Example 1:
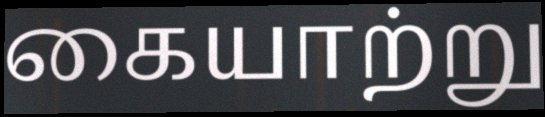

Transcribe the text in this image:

கையாற்று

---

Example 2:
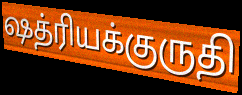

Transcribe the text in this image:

ஷத்ரியக்குருதி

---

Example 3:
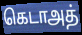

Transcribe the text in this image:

கெடாஅத்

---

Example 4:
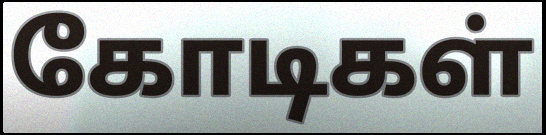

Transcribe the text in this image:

கோடிகள்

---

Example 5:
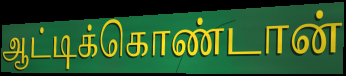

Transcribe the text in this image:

ஆட்டிக்கொண்டான்